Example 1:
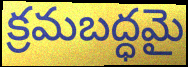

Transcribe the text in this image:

క్రమబద్ధమై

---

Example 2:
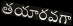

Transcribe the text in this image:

తయారవగా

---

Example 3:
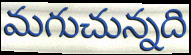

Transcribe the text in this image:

మగుచున్నది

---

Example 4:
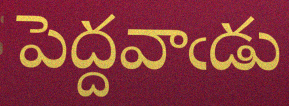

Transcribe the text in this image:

పెద్దవాఁడు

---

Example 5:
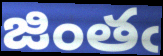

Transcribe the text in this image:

జింతఁ